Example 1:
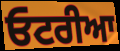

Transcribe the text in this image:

ਓਟਰੀਆ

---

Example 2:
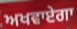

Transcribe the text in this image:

ਅਖਵਾਏਗਾ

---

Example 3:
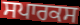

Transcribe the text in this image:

ਸਪਾਰਕਸ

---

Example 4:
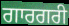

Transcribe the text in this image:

ਗਾਰਗਰੀ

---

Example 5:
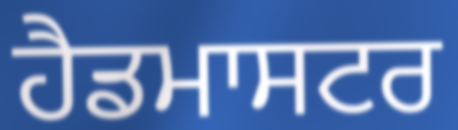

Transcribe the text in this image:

ਹੈਡਮਾਸਟਰ